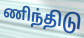
ணிந்திடு